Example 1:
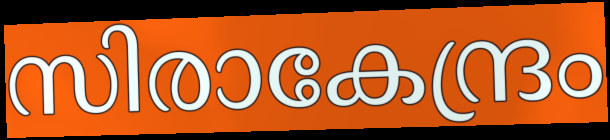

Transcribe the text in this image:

സിരാകേന്ദ്രം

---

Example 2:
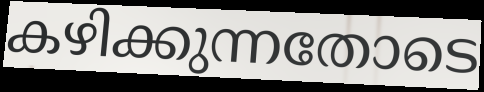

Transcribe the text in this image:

കഴിക്കുന്നതോടെ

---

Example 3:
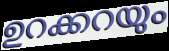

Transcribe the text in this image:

ഉറക്കറയും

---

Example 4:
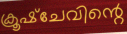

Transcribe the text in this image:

ക്രൂഷ്ചേവിന്റെ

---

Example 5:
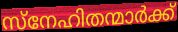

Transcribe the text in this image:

സ്നേഹിതന്മാർക്ക്